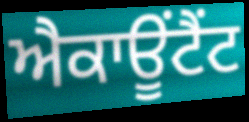
ਐਕਾਊਂਟੈਂਟ